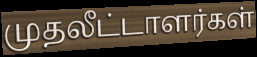
முதலீட்டாளர்கள்